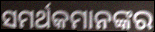
ସମର୍ଥକମାନଙ୍କର